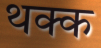
थक्क